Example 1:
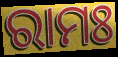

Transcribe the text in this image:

ରାମଃ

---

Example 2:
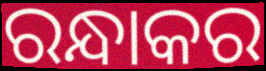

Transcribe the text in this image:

ରନ୍ଧାକର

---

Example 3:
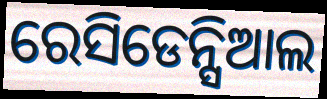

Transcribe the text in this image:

ରେସିଡେନ୍ସିଆଲ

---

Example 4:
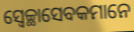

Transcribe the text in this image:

ସ୍ୱେଚ୍ଛାସେବକମାନେ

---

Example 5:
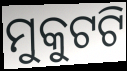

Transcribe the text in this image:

ମୁକୁଟଟି